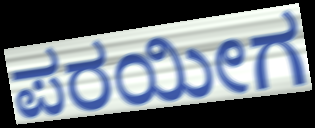
ಪರಯೀಗ